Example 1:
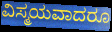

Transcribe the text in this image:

ವಿಸ್ಮಯವಾದರೂ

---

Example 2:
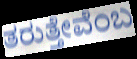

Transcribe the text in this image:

ತರುತ್ತೇವೆಂಬ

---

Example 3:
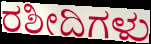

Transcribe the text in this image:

ರಶೀದಿಗಳು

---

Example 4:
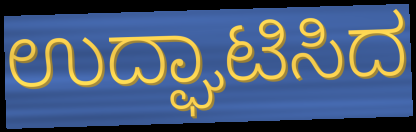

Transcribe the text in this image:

ಉದ್ಘಾಟಿಸಿದ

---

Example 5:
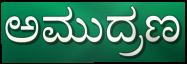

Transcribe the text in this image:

ಅಮುದ್ರಣ